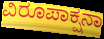
ವಿರೂಪಾಕ್ಷನಾ